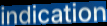
indication